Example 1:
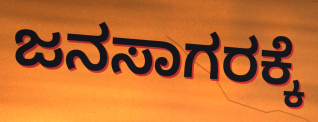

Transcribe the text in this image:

ಜನಸಾಗರಕ್ಕೆ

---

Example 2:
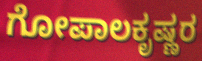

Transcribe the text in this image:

ಗೋಪಾಲಕೃಷ್ಣರ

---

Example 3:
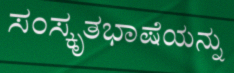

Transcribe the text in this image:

ಸಂಸ್ಕೃತಭಾಷೆಯನ್ನು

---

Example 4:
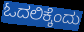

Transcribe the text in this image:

ಓದಲಿಕ್ಕೆಂದು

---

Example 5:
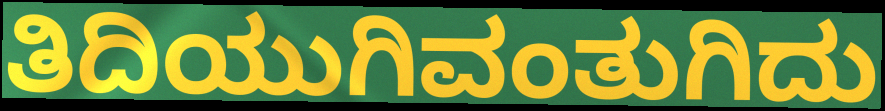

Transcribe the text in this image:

ತಿದಿಯುಗಿವಂತುಗಿದು